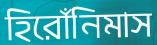
হিরোঁনিমাস